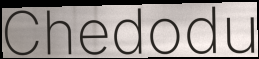
Chedodu